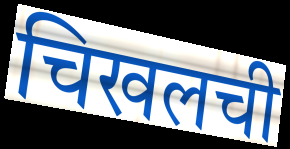
चिखलची